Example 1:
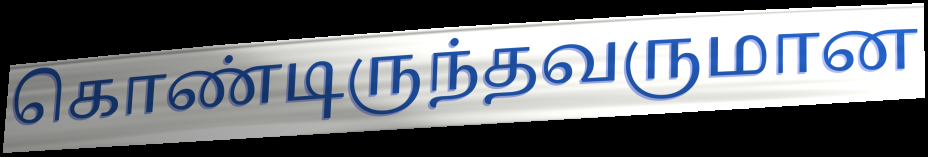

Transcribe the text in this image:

கொண்டிருந்தவருமான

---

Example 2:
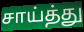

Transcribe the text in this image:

சாய்த்து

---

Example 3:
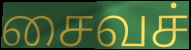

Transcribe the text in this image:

சைவச்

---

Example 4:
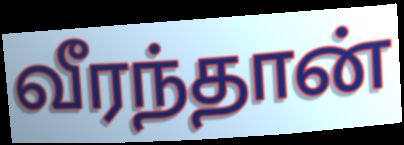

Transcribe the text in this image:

வீரந்தான்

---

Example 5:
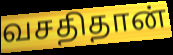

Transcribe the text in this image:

வசதிதான்